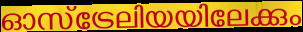
ഓസ്ട്രേലിയയിലേക്കും